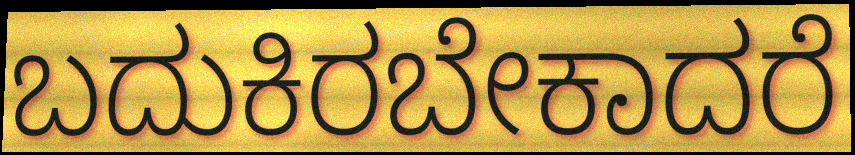
ಬದುಕಿರಬೇಕಾದರೆ